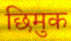
छिमुक